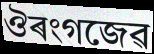
ঔৰংগজেৱ